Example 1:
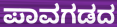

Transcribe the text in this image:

ಪಾವಗಡದ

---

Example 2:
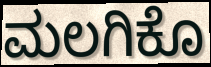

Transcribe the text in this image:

ಮಲಗಿಕೊ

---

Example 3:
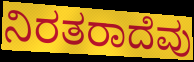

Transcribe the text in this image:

ನಿರತರಾದೆವು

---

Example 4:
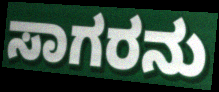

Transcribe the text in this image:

ಸಾಗರನು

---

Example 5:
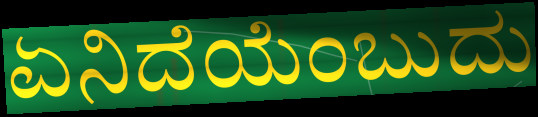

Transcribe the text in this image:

ಏನಿದೆಯೆಂಬುದು